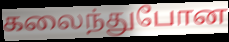
கலைந்துபோன